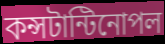
কন্সটান্টিনোপল